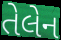
તેલેન